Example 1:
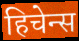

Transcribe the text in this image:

हिचेन्स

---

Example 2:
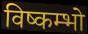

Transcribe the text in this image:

विष्कम्भो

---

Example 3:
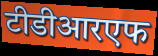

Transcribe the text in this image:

टीडीआरएफ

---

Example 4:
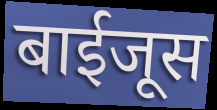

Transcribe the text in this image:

बाईजूस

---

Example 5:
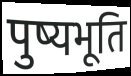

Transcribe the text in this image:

पुष्यभूति